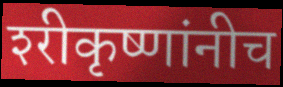
श्रीकृष्णांनीच